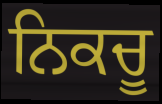
ਨਿਕਚੂ